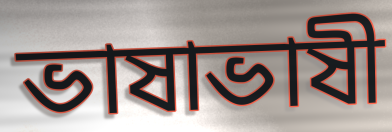
ভাষাভাষী